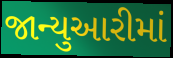
જાન્યુઆરીમાં